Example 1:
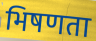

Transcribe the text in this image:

भिषणता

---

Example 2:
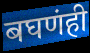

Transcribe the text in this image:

बघणंही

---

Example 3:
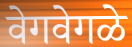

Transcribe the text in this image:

वेगवेगळे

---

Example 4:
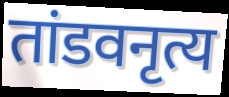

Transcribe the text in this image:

तांडवनृत्य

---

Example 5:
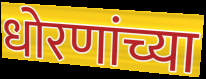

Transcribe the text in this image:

धोरणांच्या